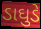
ડાઘુડે